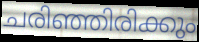
ചരിഞ്ഞിരിക്കും